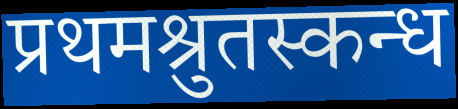
प्रथमश्रुतस्कन्ध